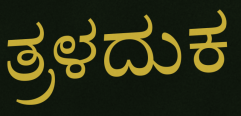
ತ್ರಳದುಕ